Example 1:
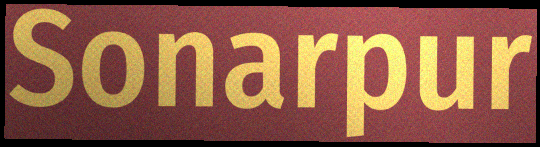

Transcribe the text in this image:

Sonarpur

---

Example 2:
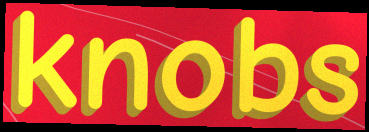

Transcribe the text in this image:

knobs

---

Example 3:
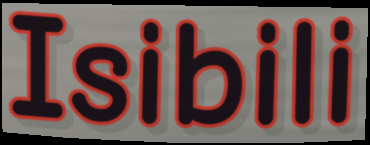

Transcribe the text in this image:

Isibili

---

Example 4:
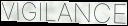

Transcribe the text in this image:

VIGILANCE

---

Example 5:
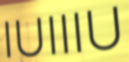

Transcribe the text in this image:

IUIIIU